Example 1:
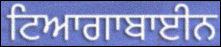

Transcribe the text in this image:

ਟਿਆਗਾਬਾਈਨ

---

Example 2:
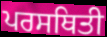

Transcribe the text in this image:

ਪਰਸਥਿਤੀ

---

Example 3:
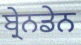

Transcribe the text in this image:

ਬ੍ਰੇਨਡੇਨ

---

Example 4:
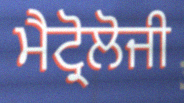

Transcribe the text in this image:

ਮੈਟ੍ਰੋਲੋਜੀ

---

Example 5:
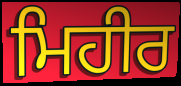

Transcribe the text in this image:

ਮਿਹੀਰ